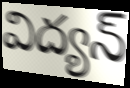
విద్యన్